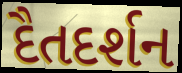
દૈતદર્શન